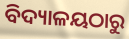
ବିଦ୍ୟାଳୟଠାରୁ